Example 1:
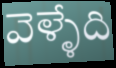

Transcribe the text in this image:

వెళ్ళేది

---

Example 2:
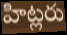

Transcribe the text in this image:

హిట్లరు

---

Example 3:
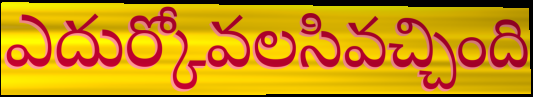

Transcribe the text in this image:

ఎదుర్కోవలసివచ్చింది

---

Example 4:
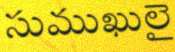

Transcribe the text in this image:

సుముఖులై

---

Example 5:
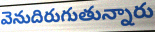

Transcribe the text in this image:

వెనుదిరుగుతున్నారు